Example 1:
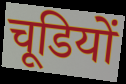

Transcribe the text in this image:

चूडियों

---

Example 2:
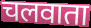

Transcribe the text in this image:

चलवाता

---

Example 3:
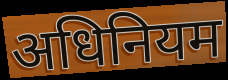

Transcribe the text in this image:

अधिनियम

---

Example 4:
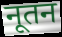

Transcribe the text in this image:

नूतन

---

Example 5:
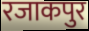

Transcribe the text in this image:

रजाकपुर